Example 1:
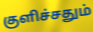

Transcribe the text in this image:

குளிச்சதும்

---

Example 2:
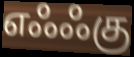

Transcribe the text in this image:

எஃஃகு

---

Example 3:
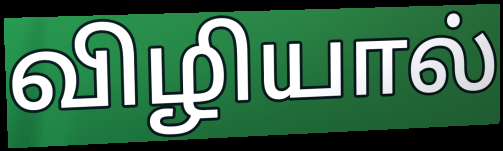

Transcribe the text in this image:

விழியால்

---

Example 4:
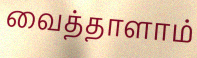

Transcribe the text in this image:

வைத்தாளாம்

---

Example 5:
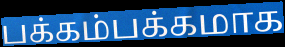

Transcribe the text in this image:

பக்கம்பக்கமாக